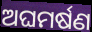
ଅଘମର୍ଷଣ